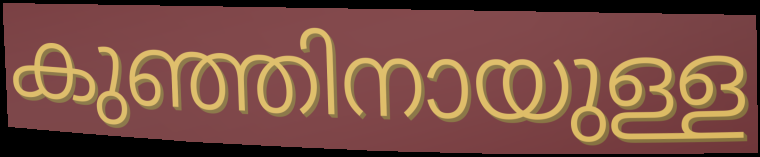
കുഞ്ഞിനായുള്ള